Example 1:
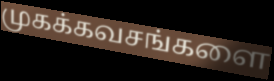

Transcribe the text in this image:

முகக்கவசங்களை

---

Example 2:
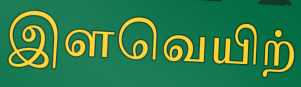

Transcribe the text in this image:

இளவெயிற்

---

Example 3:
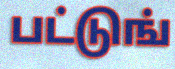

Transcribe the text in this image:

பட்டுங்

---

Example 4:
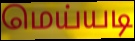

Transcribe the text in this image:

மெய்யடி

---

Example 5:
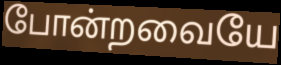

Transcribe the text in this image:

போன்றவையே